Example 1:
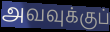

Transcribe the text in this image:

அவவுக்குப்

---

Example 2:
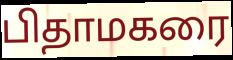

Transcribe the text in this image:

பிதாமகரை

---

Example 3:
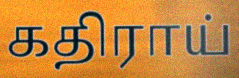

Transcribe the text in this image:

கதிராய்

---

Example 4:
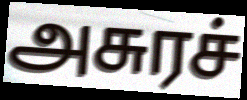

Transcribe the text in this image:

அசுரச்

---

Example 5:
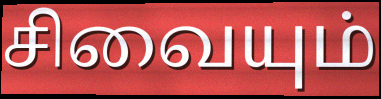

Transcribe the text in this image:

சிவையும்